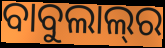
ବାବୁଲାଲ୍‍ର